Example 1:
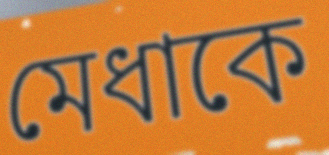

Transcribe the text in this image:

মেধাকে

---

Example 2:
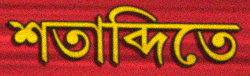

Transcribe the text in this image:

শতাব্দিতে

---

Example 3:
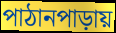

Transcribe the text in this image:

পাঠানপাড়ায়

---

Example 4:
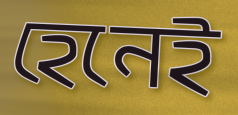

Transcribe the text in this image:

হেনেই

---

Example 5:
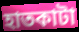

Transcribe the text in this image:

হাতকাটা